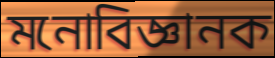
মনোবিজ্ঞানক